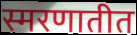
स्मरणातीत